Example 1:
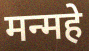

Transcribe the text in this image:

मन्महे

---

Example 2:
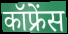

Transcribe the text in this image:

कॉफ्रेंस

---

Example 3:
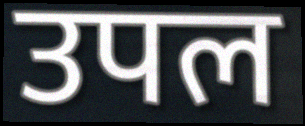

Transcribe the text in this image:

उपल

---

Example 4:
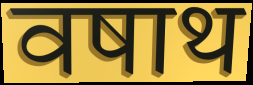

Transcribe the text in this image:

वषाथ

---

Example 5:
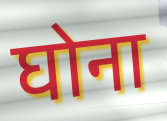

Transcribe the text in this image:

घोना